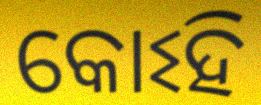
କୋଽହି